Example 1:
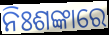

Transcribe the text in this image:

ନିଃଶଙ୍କାରେ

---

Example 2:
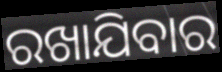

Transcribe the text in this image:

ରଖାଯିବାର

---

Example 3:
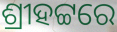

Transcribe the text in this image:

ଶ୍ରୀହଟ୍ଟରେ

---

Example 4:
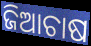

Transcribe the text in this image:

ଜିଆଚାଷ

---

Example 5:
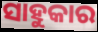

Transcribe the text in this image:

ସାହୁକାର